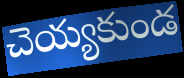
చెయ్యకుండ